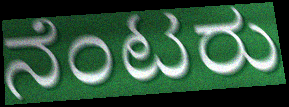
ನೆಂಟರು